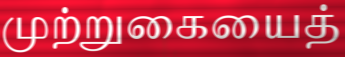
முற்றுகையைத்